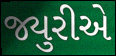
જ્યુરીએ